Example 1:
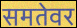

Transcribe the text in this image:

समतेवर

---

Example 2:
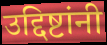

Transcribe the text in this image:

उद्दिष्टांनी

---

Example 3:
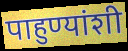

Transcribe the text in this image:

पाहुण्यांशी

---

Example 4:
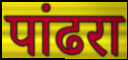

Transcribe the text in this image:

पांढरा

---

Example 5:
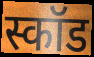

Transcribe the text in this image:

स्कॉड